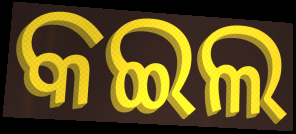
କଇଲ